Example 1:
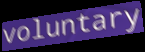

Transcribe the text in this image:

voluntary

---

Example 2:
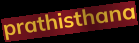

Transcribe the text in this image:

prathisthana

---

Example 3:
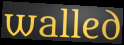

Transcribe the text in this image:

walled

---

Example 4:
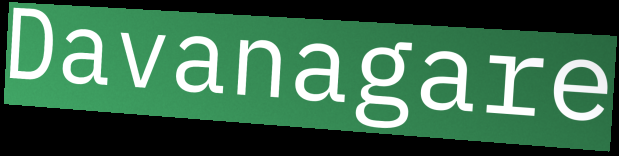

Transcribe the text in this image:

Davanagare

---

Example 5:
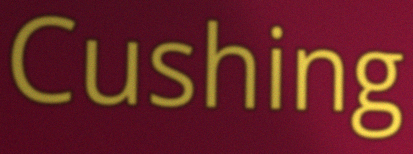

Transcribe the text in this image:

Cushing